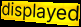
displayed